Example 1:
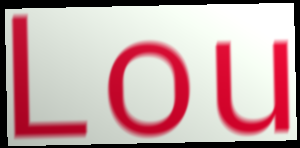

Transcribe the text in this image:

Lou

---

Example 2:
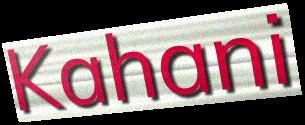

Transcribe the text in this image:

Kahani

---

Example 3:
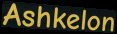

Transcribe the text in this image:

Ashkelon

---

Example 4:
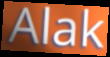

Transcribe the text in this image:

Alak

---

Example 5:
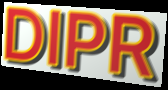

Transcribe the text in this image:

DIPR